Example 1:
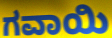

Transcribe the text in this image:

ಗವಾಯಿ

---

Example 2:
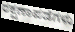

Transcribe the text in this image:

ರಕ್ಷಣಾಪಡೆಗಳು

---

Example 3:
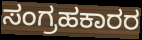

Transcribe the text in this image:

ಸಂಗ್ರಹಕಾರರ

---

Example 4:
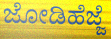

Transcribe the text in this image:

ಜೋಡಿಹೆಜ್ಜೆ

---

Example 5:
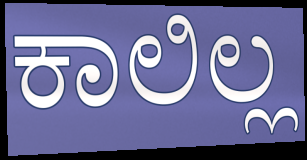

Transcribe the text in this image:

ಕಾಲಿಲ್ಲ